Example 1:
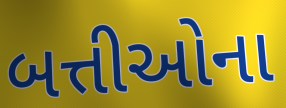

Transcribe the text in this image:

બત્તીઓના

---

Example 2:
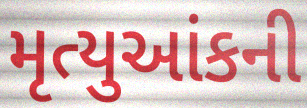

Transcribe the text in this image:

મૃત્યુઆંકની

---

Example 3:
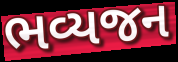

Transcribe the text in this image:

ભવ્યજન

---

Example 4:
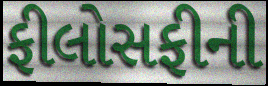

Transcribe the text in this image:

ફીલોસફીની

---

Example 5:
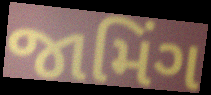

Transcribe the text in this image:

જામિંગ